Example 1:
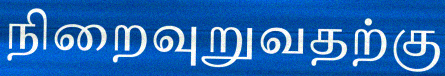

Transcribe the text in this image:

நிறைவுறுவதற்கு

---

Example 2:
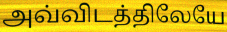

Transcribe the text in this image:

அவ்விடத்திலேயே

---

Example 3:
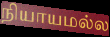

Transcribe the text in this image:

நியாயமல்ல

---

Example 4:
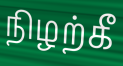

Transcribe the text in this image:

நிழற்கீ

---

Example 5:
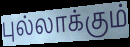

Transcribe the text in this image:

புல்லாக்கும்